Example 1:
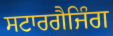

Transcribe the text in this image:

ਸਟਾਰਗੈਜਿੰਗ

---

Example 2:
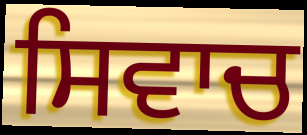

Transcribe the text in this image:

ਸਿਵਾਚ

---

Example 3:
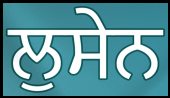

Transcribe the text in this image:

ਲੁਸੇਨ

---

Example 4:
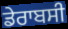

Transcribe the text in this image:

ਡੇਰਾਬਸੀ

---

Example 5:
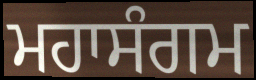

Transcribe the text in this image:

ਮਹਾਸੰਗਮ